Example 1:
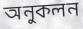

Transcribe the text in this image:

অনুকলন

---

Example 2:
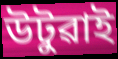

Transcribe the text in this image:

উটুৱাই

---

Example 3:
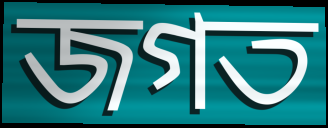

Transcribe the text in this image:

জগত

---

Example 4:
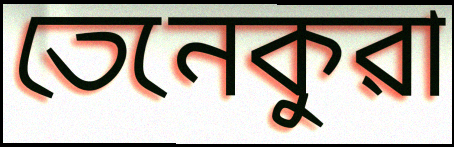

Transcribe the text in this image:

তেনেকুৱা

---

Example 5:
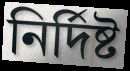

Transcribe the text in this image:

নিৰ্দিষ্ট